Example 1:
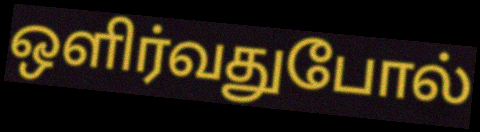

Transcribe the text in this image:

ஒளிர்வதுபோல்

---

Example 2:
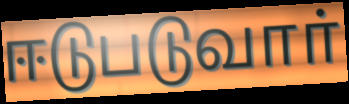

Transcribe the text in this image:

ஈடுபடுவார்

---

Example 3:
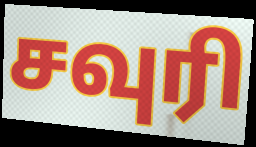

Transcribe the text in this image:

சவுரி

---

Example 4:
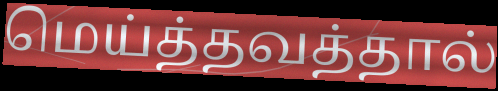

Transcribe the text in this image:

மெய்த்தவத்தால்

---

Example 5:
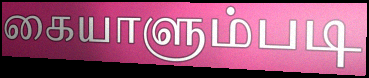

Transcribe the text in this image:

கையாளும்படி